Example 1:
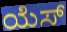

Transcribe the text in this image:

ಯೆಸ್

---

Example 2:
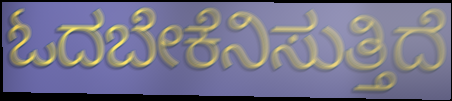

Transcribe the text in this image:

ಓದಬೇಕೆನಿಸುತ್ತಿದೆ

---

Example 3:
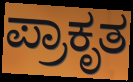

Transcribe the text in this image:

ಪ್ರಾಕೃತ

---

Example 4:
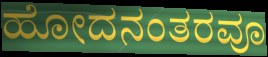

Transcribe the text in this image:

ಹೋದನಂತರವೂ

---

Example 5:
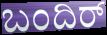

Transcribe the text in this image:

ಬಂದಿರ್